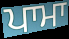
ਪਾਮਾ